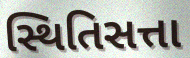
સ્થિતિસત્તા